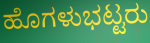
ಹೊಗಳುಭಟ್ಟರು